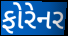
ફોરેનર